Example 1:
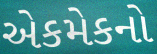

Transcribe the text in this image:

એકમેકનો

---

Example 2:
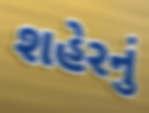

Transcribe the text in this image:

શહેરનું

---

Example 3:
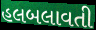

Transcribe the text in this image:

હલબલાવતી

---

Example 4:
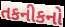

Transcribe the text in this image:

તકનીકનો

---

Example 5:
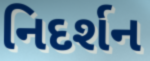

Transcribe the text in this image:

નિદર્શન